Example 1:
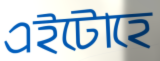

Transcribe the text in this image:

এইটোহে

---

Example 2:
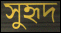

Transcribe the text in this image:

সুহৃদ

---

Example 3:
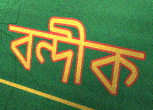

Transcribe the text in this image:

বন্দীক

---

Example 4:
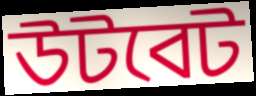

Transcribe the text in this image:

উটবেট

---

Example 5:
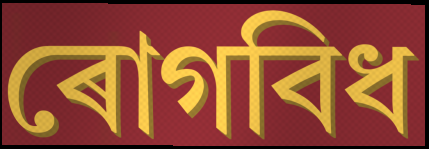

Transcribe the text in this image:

ৰোগবিধ